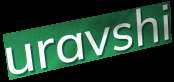
uravshi